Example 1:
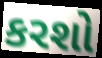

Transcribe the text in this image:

કરશો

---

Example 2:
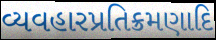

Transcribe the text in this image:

વ્યવહારપ્રતિક્રમણાદિ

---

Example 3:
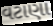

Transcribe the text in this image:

વટાણા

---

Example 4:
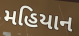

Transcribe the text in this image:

મહિયાન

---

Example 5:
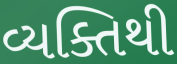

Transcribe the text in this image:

વ્યક્તિથી